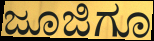
ಜೂಜಿಗೂ